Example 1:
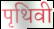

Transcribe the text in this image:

पृथिवी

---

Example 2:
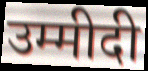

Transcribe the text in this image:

उम्मीदी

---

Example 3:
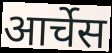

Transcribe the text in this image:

आर्चेस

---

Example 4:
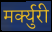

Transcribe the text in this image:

मर्क्युरी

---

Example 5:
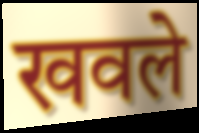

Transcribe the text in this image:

खवले